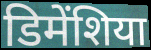
डिमेंशिया